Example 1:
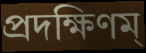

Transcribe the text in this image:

প্রদক্ষিণম্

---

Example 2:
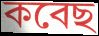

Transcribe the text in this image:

কবেছ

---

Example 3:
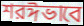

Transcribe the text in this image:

শরঈভাবে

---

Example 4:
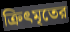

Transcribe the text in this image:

ক্রিৎমৃতের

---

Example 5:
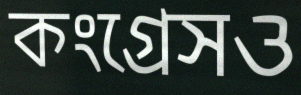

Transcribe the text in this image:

কংগ্রেসও